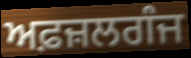
ਅਫ਼ਜ਼ਲਗੰਜ